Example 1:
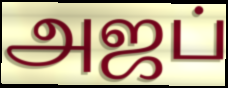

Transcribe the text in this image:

அஜப்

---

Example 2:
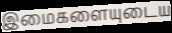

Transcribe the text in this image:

இமைகளையுடைய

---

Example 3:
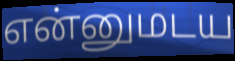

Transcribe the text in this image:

என்னுமடய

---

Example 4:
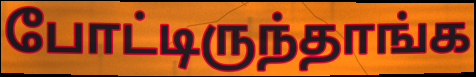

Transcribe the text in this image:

போட்டிருந்தாங்க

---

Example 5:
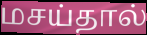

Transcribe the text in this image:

மசய்தால்